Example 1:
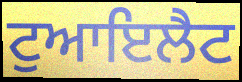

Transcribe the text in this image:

ਟੁਆਇਲੈਟ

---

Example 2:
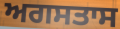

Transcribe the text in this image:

ਅਗਸਤਾਸ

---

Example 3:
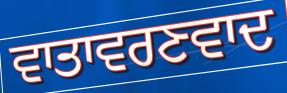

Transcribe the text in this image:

ਵਾਤਾਵਰਣਵਾਦ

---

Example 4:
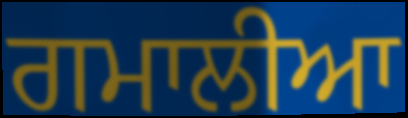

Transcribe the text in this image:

ਗਮਾਲੀਆ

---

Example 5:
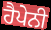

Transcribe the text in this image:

ਹੈਪੇਨੀ